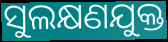
ସୁଲକ୍ଷଣଯୁକ୍ତ